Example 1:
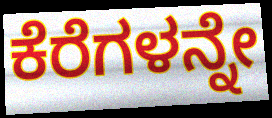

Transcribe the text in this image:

ಕೆರೆಗಳನ್ನೇ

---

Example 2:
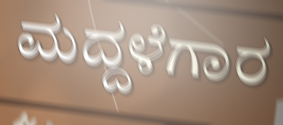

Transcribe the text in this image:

ಮದ್ದಳೆಗಾರ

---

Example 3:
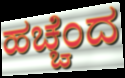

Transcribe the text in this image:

ಹಚ್ಚೆಂದ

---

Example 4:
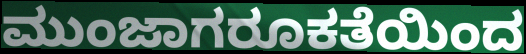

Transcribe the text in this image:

ಮುಂಜಾಗರೂಕತೆಯಿಂದ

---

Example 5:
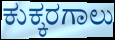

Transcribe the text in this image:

ಕುಕ್ಕರಗಾಲು